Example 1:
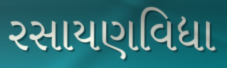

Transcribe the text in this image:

રસાયણવિદ્યા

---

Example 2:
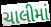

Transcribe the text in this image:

ચાલીમાં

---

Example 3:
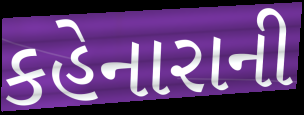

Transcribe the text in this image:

કહેનારાની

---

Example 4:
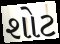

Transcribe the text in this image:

શોટ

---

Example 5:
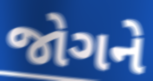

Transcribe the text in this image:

જોગને